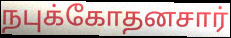
நபுக்கோதனசார்